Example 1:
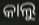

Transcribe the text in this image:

କାଲୁ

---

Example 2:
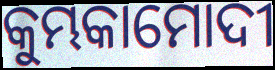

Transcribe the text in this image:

କୁମ୍ଭକାମୋଦୀ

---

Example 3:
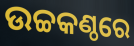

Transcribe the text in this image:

ଉଚ୍ଚକଣ୍ଠରେ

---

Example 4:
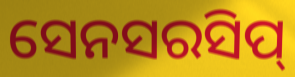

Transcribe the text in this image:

ସେନସରସିପ୍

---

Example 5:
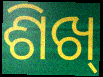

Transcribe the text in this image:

ଶିଖ୍